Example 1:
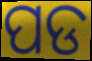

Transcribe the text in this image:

ପଡ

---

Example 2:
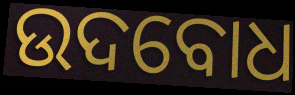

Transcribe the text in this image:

ଉଦବୋଧ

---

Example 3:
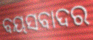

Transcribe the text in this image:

ବୟସବାଦର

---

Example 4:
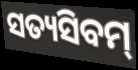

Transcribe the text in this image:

ସତ୍ୟସିବମ୍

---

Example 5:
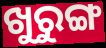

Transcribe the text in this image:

ଖୁରୁଙ୍ଗ